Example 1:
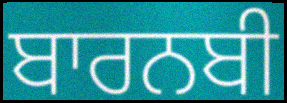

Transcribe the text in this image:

ਬਾਰਨਬੀ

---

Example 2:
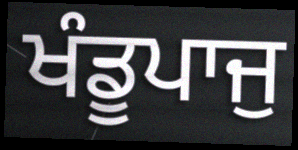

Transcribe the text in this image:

ਖੰਡੂਪਾਜੁ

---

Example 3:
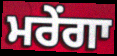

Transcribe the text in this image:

ਮਰੇਂਗਾ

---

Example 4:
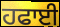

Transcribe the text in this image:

ਹਫਾਈ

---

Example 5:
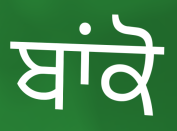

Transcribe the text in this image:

ਬਾਂਕੋ